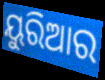
ୟୁରିଆର